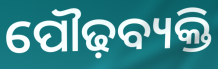
ପୌଢ଼ବ୍ୟକ୍ତି